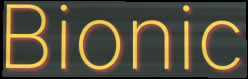
Bionic